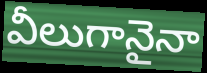
వీలుగానైనా